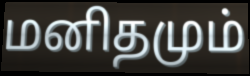
மனிதமும்